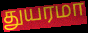
துயரமா